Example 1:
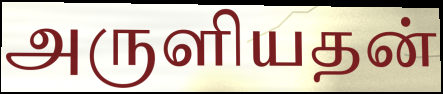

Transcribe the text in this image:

அருளியதன்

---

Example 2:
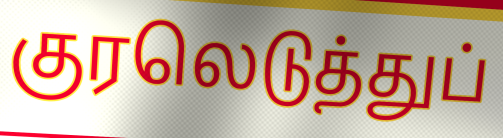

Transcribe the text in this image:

குரலெடுத்துப்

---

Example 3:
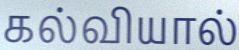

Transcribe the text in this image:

கல்வியால்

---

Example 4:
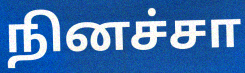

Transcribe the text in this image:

நினச்சா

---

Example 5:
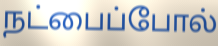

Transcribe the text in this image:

நட்பைப்போல்